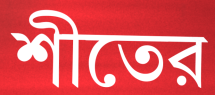
শীতের